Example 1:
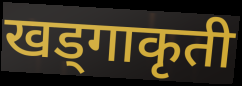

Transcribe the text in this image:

खड्गाकृती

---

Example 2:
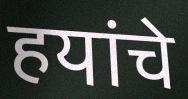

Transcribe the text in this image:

हयांचे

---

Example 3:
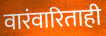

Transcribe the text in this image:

वारंवारिताही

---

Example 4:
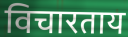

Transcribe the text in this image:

विचारताय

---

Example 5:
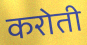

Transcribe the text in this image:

करोती